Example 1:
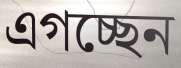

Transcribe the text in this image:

এগচ্ছেন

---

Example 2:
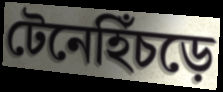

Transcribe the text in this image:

টেনেহিঁচড়ে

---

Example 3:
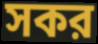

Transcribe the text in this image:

সকর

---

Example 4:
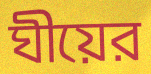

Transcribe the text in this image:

ঘীয়ের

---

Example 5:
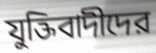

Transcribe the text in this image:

যুক্তিবাদীদের